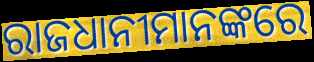
ରାଜଧାନୀମାନଙ୍କରେ